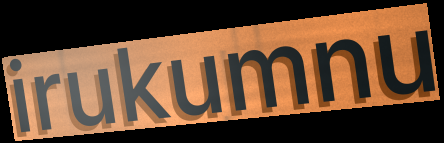
irukumnu